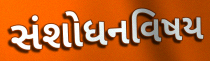
સંશોધનવિષય